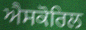
ਐਸਕੋਰਿਲ